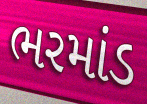
ભરમાંડ